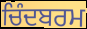
ਚਿੰਦਬਰਮ